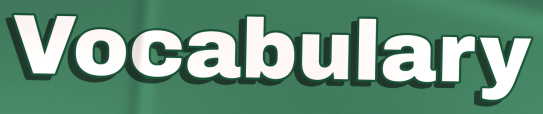
Vocabulary